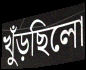
খুঁড়ছিলো